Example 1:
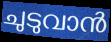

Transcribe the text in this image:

ചുടുവാൻ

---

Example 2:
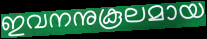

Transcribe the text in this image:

ഇവനനുകൂലമായ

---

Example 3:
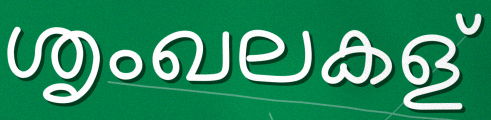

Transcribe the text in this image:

ശൃംഖലകള്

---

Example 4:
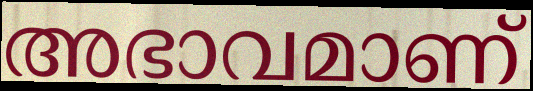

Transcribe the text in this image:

അഭാവമാണ്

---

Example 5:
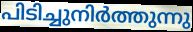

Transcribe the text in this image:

പിടിച്ചുനിർത്തുന്നു